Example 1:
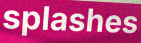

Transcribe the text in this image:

splashes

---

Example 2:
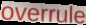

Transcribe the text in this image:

overrule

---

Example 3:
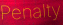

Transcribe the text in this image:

Penalty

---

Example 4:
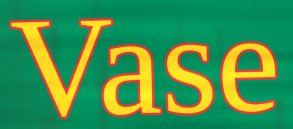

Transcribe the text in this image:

Vase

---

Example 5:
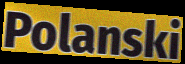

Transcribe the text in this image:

Polanski